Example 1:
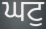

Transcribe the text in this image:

ਘਟੁ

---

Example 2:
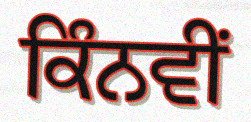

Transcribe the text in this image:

ਕਿੰਨਵੀਂ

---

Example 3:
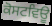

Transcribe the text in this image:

ਕੋਸਟਵਿਊ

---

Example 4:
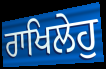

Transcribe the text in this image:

ਰਾਖਿਲੇਹੁ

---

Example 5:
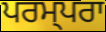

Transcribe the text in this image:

ਪਰਮ੍ਪਰਾ